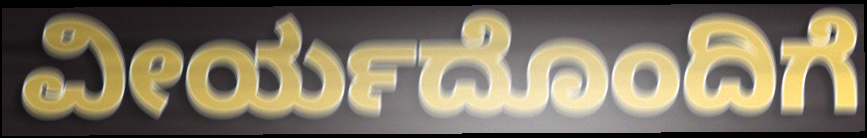
ವೀರ್ಯದೊಂದಿಗೆ